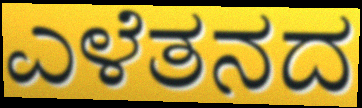
ಎಳೆತನದ